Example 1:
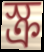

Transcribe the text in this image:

স্ক্র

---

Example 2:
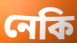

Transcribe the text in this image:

নেকি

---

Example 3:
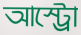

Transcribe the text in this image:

আস্ট্রো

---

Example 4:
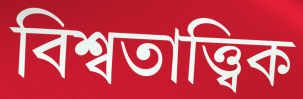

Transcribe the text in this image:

বিশ্বতাত্ত্বিক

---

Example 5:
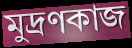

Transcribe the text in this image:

মুদ্রণকাজ